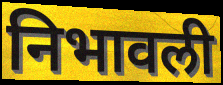
निभावली